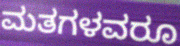
ಮತಗಳವರೂ